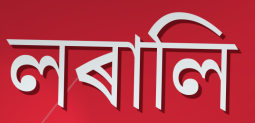
লৰালি